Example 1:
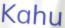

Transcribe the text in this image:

Kahu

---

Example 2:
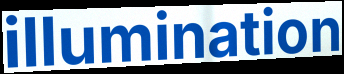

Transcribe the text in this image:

illumination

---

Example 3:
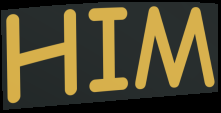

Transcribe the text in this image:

HIM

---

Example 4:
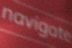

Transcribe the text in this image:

navigate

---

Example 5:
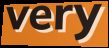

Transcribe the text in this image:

very